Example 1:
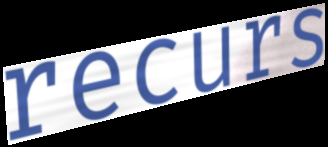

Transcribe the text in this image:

recurs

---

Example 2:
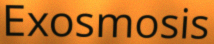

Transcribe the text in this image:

Exosmosis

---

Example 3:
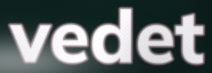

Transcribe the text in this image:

vedet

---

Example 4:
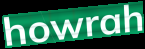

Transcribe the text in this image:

howrah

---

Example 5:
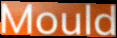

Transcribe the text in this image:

Mould